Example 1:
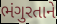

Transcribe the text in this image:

ભંગુરતાને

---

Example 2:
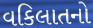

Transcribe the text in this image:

વકિલાતનો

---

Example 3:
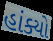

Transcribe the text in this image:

હાંક્યો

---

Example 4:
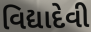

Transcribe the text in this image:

વિદ્યાદેવી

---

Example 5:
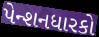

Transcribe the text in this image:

પેન્શનધારકો